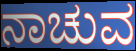
ನಾಚುವ